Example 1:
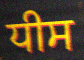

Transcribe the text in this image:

ਧੀਸ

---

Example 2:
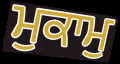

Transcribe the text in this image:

ਮੁਕਾਮੁ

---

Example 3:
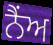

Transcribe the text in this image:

ਨੈਂਅ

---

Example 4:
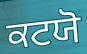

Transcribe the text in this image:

ਕਟਯੋ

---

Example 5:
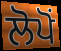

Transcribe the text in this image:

ਲੋਪੋਂ